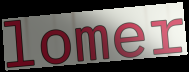
lomer